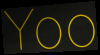
Yoo